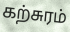
கற்சுரம்